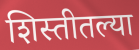
शिस्तीतल्या